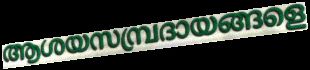
ആശയസമ്പ്രദായങ്ങളെ